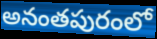
అనంతపురంలో